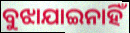
ବୁଝାଯାଇନାହିଁ